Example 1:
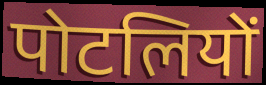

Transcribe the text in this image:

पोटलियों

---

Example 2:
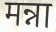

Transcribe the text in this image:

मन्ना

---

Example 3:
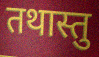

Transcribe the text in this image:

तथास्तु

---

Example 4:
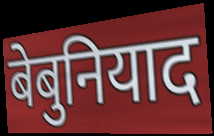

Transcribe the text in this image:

बेबुनियाद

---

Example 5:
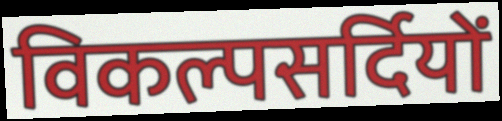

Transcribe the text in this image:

विकल्पसर्दियों